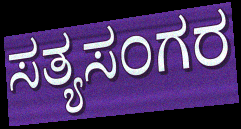
ಸತ್ಯಸಂಗರ